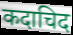
कदाचिद